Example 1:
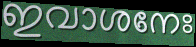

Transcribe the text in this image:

ഇവാശനേഃ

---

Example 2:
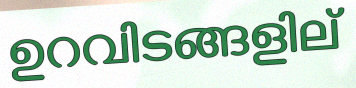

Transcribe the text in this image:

ഉറവിടങ്ങളില്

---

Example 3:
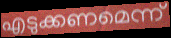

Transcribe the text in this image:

എടുക്കണമെന്ന്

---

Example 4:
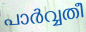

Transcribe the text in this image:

പാർവ്വതീ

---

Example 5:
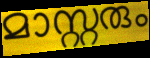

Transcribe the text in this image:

മാസ്റ്റരും